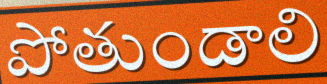
పోతుండాలి